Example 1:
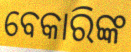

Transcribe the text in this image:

ବେକାରିଙ୍କ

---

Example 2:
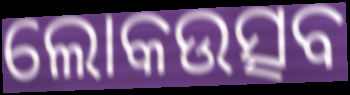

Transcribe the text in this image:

ଲୋକଉତ୍ସବ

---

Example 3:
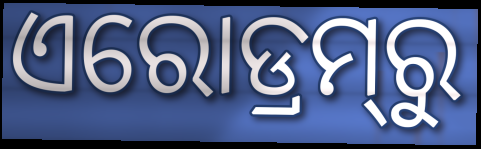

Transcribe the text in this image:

ଏରୋଡ୍ରମ୍‍ରୁ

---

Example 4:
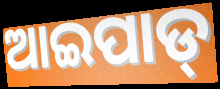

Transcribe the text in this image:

ଆଇପାଡ୍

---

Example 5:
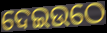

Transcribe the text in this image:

ଦେଇଉଠେ